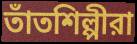
তাঁতশিল্পীরা